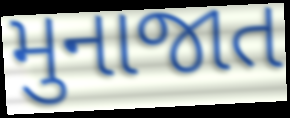
મુનાજાત